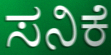
ಸನಿಕೆ